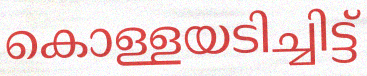
കൊള്ളയടിച്ചിട്ട്